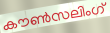
കൗൺസലിംഗ്